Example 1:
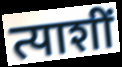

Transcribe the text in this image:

त्याशीं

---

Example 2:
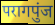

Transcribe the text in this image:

परागपुंज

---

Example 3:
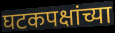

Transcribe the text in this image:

घटकपक्षांच्या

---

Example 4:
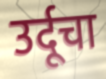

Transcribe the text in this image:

उर्दूचा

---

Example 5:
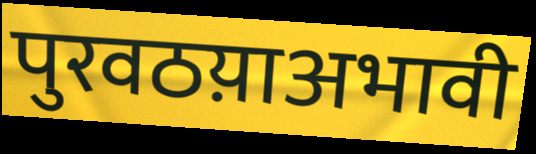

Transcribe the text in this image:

पुरवठय़ाअभावी